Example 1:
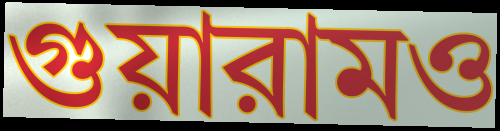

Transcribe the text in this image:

গুয়ারামও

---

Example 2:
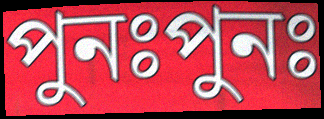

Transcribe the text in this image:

পুনঃপুনঃ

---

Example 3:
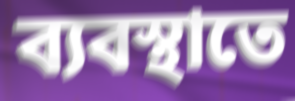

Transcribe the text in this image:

ব্যবস্থাতে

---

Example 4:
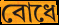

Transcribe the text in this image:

বোধে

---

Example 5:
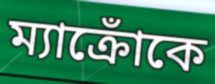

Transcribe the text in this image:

ম্যাক্রোঁকে